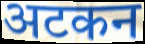
अटकन